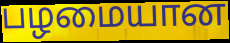
பழமையான